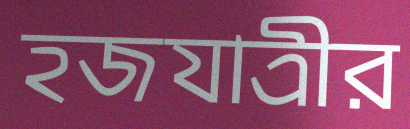
হজযাত্রীর